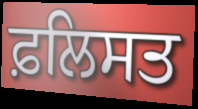
ਫ਼ਲਿਸਤ